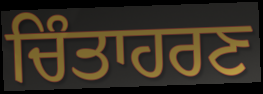
ਚਿੰਤਾਹਰਣ